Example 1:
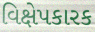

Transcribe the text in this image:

વિક્ષેપકારક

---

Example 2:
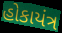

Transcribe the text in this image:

હોકાયંત્ર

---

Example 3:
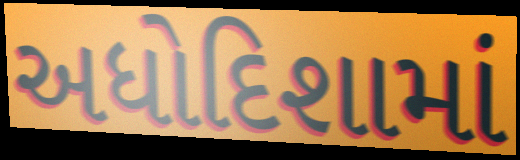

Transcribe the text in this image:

અધોદિશામાં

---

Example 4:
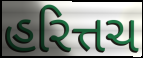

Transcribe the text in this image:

હરિત્તચ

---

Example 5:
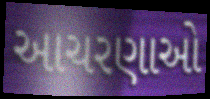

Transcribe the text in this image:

આચરણાઓ